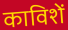
काविशें